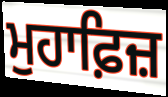
ਮੁਹਾਫ਼ਿਜ਼